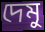
দেমু